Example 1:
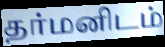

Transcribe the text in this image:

தர்மனிடம்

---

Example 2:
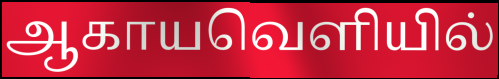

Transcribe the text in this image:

ஆகாயவெளியில்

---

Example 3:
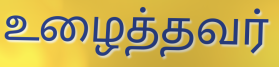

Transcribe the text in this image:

உழைத்தவர்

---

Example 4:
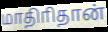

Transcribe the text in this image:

மாதிரிதான்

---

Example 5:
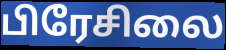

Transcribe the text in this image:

பிரேசிலை